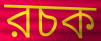
রচক